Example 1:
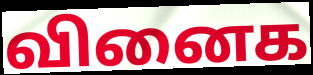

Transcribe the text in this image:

வினைக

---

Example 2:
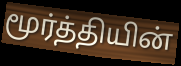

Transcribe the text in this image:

மூர்த்தியின்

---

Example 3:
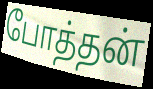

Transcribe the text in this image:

போத்தன்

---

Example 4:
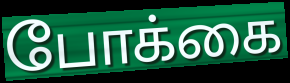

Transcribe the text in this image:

போக்கை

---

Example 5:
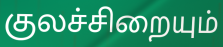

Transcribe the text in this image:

குலச்சிறையும்